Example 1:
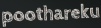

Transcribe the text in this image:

poothareku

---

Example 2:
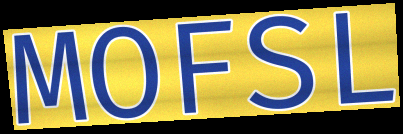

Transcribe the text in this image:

MOFSL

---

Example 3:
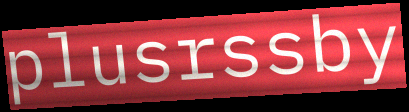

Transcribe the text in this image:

plusrssby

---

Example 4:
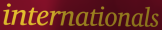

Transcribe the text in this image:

internationals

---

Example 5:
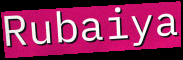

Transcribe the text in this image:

Rubaiya